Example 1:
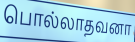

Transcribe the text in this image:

பொல்லாதவனா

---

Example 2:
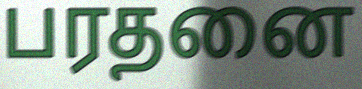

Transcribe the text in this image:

பரதனை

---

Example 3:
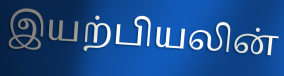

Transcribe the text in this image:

இயற்பியலின்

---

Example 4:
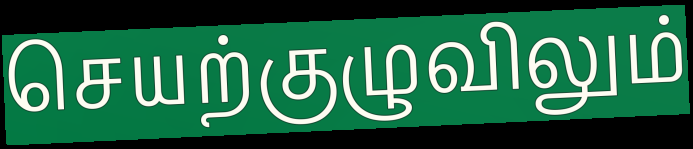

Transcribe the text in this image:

செயற்குழுவிலும்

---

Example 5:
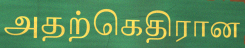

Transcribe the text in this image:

அதற்கெதிரான